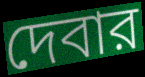
দেবার